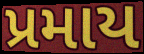
પ્રમાય